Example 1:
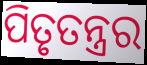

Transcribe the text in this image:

ପିତୃତନ୍ତ୍ରର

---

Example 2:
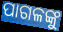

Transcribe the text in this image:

ପାଗଳଙ୍କୁ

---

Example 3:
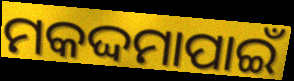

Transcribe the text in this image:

ମକଦ୍ଦମାପାଇଁ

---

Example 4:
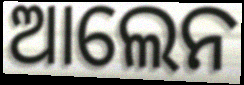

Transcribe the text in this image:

ଆଲେନ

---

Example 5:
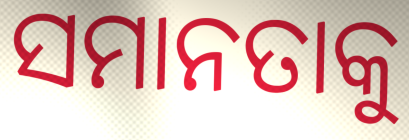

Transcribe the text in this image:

ସମାନତାକୁ